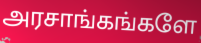
அரசாங்கங்களே